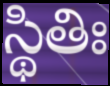
స్థితిః